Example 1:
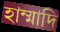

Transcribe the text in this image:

হাম্মাদি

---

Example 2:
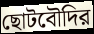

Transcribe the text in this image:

ছোটবৌদির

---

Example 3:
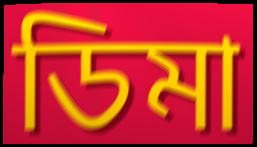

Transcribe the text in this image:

ডিমা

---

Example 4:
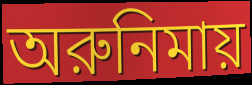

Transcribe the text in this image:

অরুনিমায়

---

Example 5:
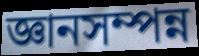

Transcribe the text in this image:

জ্ঞানসম্পন্ন